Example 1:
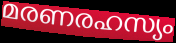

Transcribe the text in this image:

മരണരഹസ്യം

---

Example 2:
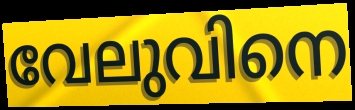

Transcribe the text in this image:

വേലുവിനെ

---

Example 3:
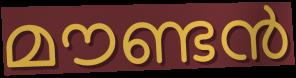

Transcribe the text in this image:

മൗണ്ടൻ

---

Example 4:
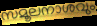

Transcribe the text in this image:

സമൂലനാശവും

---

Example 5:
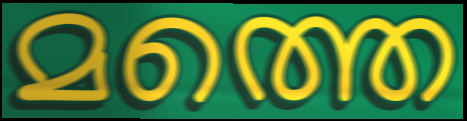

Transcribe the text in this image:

മത്തെ